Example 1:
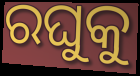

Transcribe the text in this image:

ରଘୁକୁ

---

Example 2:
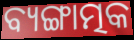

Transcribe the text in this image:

ବ୍ୟଙ୍ଗାତ୍ମକ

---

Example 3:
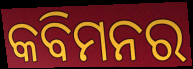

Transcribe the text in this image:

କବିମନର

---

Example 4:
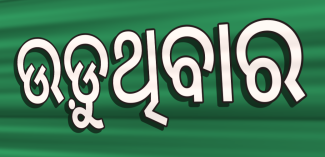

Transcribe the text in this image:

ଉଡ଼ୁଥିବାର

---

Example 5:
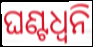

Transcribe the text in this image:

ଘଣ୍ଟଧ୍ୱନି